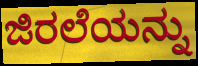
ಜಿರಲೆಯನ್ನು